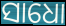
ସାଧୋ